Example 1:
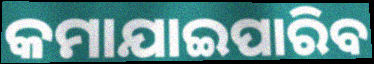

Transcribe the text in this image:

କମାଯାଇପାରିବ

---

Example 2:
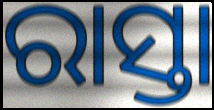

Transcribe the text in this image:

ରାସ୍ତା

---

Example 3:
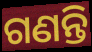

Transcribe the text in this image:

ଗଣନ୍ତି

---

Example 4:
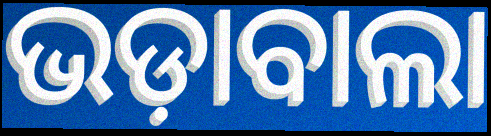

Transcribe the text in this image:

ଭଡ଼ାବାଲା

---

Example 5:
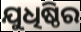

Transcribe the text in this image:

ଯୁଧିଷ୍ଠିର